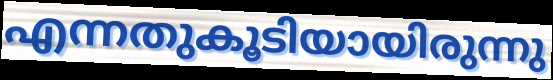
എന്നതുകൂടിയായിരുന്നു